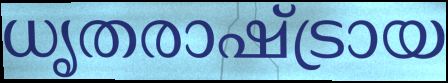
ധൃതരാഷ്ട്രായ